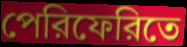
পেরিফেরিতে